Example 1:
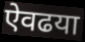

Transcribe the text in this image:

ऐवढया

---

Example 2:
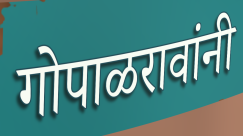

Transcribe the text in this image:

गोपाळरावांनी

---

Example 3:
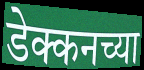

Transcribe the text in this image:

डेक्कनच्या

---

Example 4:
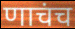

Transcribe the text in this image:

णाचंच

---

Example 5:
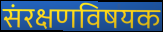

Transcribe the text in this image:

संरक्षणविषयक